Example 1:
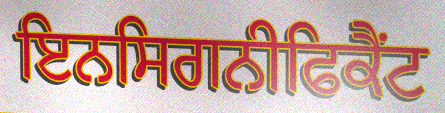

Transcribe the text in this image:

ਇਨਸਿਗਨੀਫਿਕੈਂਟ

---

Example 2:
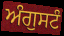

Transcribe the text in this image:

ਅੰਗੁਸਟੰ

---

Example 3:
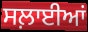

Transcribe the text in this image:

ਸਲ਼ਾਈਆਂ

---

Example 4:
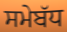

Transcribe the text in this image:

ਸਮੇਬੱਧ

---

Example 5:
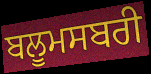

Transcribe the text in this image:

ਬਲੂਮਸਬਰੀ